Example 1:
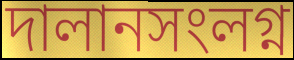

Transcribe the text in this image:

দালানসংলগ্ন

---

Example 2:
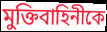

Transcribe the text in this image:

মুক্তিবাহিনীকে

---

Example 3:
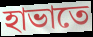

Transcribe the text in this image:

হাভাতে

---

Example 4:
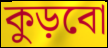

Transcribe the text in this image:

কুড়বো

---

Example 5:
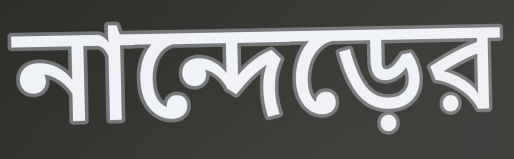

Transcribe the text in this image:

নান্দেড়ের